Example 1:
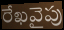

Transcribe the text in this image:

రేఖవైపు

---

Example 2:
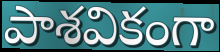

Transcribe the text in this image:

పాశవికంగా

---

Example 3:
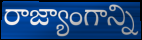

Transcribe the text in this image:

రాజ్యాంగాన్ని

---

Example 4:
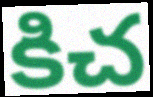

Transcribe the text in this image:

కిచ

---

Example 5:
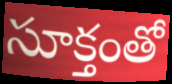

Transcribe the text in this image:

సూక్తంతో